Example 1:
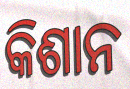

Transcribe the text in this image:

କିଶାନ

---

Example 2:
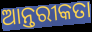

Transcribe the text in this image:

ଆନ୍ତରୀକତା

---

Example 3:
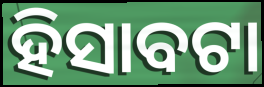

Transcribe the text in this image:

ହିସାବଟା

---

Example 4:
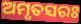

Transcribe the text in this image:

ଅମୃତସରଃ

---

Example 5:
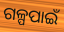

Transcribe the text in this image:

ଗଳ୍ପପାଇଁ